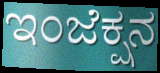
ಇಂಜೆಕ್ಷನ